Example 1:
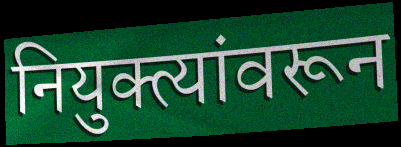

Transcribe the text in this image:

नियुक्त्यांवरून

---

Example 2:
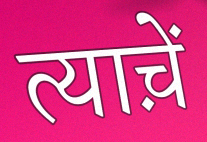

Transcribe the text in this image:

त्याच़ें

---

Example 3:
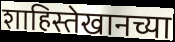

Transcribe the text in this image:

शाहिस्तेखानच्या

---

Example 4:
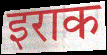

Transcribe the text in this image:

इराक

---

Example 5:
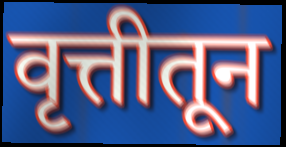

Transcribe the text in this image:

वृत्तीतून